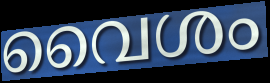
വൈശം